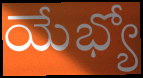
యేభ్యో